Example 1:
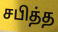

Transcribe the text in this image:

சபித்த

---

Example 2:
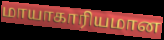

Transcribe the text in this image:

மாயாகாரியமான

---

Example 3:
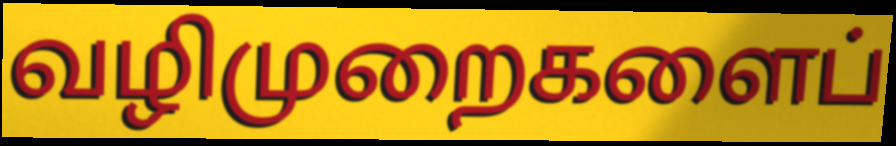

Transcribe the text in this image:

வழிமுறைகளைப்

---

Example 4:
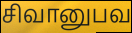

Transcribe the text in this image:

சிவானுபவ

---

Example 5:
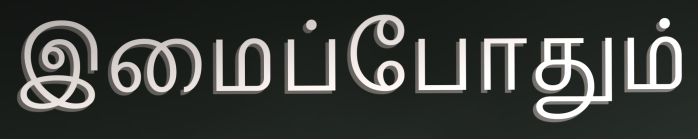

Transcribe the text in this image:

இமைப்போதும்